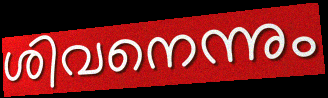
ശിവനെന്നും